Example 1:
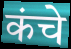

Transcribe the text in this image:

कंचे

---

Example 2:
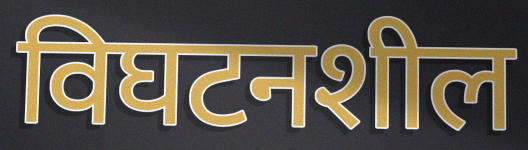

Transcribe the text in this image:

विघटनशील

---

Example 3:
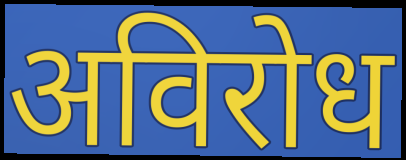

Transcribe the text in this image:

अविरोध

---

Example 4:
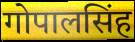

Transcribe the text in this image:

गोपालसिंह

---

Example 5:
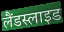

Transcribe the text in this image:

लैंडस्लाइड